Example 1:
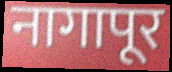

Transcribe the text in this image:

नागापूर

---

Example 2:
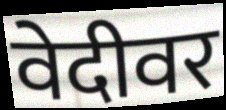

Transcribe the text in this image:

वेदीवर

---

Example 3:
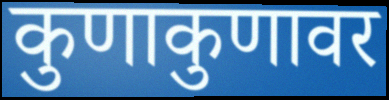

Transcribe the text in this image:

कुणाकुणावर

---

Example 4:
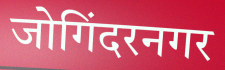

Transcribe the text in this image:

जोगिंदरनगर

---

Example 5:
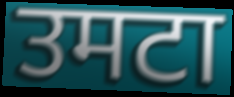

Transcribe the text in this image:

उमटा